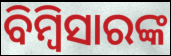
ବିମ୍ବିସାରଙ୍କ